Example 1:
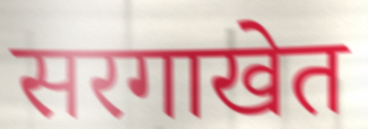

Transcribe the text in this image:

सरगाखेत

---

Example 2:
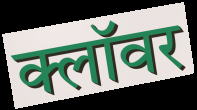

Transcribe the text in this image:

क्लॉवर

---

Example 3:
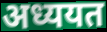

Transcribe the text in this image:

अध्ययत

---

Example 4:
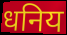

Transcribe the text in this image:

धनिय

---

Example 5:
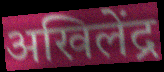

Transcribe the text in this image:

अखिलेंद्र